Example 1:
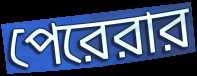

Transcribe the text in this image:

পেরেরার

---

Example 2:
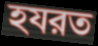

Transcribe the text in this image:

হযরত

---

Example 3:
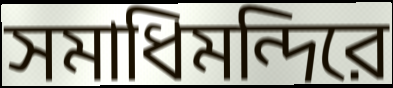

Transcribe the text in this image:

সমাধিমন্দিরে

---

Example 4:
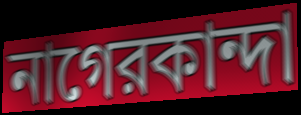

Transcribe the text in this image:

নাগেরকান্দা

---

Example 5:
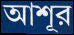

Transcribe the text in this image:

আশূর